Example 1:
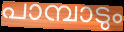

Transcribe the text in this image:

പാമ്പാടും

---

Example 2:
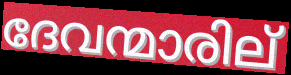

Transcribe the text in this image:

ദേവന്മാരില്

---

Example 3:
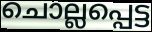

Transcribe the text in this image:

ചൊല്ലപ്പെട്ട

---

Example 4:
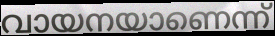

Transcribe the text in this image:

വായനയാണെന്ന്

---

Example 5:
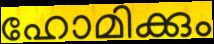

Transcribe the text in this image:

ഹോമിക്കും